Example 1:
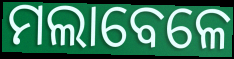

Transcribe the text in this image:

ମଲାବେଳେ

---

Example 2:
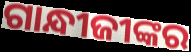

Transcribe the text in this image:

ଗାନ୍ଧୀଜୀଙ୍କର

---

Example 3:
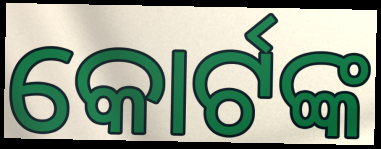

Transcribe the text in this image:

କୋର୍ଟଙ୍କ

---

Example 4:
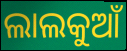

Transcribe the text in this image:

ଲାଲକୁଆଁ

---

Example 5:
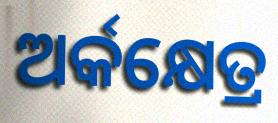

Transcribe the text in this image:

ଅର୍କକ୍ଷେତ୍ର